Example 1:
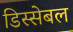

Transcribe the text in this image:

डिस्सेबल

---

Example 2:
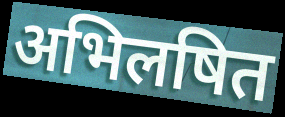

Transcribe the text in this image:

अभिलषित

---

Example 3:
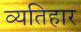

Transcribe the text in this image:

व्यतिहार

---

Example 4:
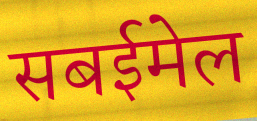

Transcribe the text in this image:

सबईमेल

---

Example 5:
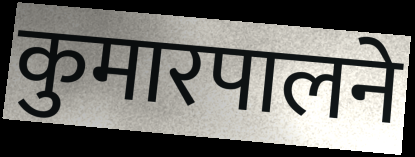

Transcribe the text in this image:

कुमारपालने